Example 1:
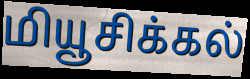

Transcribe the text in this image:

மியூசிக்கல்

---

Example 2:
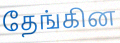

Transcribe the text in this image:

தேங்கின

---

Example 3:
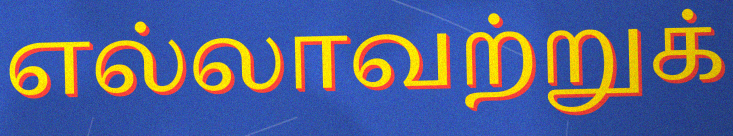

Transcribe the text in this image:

எல்லாவற்றுக்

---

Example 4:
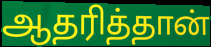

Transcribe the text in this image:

ஆதரித்தான்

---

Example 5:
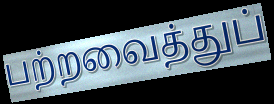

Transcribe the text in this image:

பற்றவைத்துப்